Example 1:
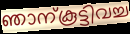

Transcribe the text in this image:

ഞാന്കൂട്ടിവച്ച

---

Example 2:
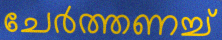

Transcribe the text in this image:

ചേർത്തണച്ച്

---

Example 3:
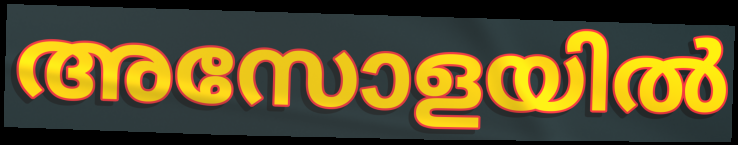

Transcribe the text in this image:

അസോളയിൽ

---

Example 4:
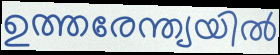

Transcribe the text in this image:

ഉത്തരേന്ത്യയിൽ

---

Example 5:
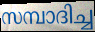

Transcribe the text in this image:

സമ്പാദിച്ച